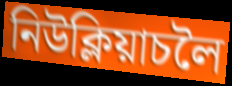
নিউক্লিয়াচলৈ